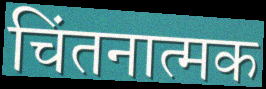
चिंतनात्मक